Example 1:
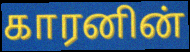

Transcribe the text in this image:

காரனின்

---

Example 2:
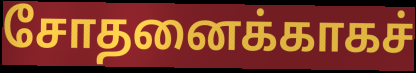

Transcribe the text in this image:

சோதனைக்காகச்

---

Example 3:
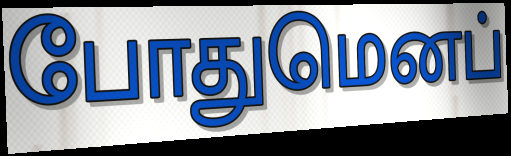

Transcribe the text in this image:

போதுமெனப்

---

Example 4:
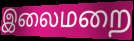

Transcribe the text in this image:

இலைமறை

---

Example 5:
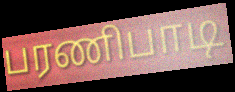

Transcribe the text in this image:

பரணிபாடி